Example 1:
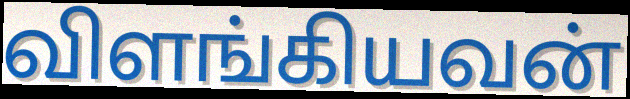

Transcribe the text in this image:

விளங்கியவன்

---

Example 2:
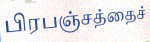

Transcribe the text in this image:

பிரபஞ்சத்தைச்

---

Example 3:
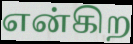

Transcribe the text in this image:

என்கிற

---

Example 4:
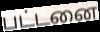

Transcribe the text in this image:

பட்டனை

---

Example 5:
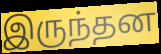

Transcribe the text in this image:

இருந்தன